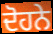
ਦੋਹਨੇ